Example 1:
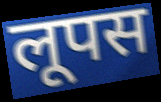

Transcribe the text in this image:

लूपस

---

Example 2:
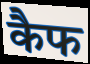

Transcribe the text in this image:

कैफ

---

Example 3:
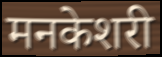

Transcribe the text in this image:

मनकेशरी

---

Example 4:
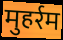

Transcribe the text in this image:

मुहर्रम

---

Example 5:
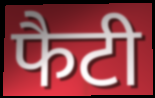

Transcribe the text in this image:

फैटी